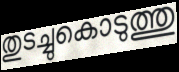
തുടച്ചുകൊടുത്തു